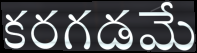
కరగడమే